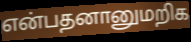
என்பதனானுமறிக